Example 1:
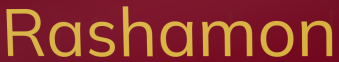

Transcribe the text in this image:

Rashamon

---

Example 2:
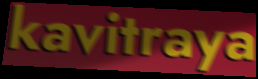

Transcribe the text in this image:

kavitraya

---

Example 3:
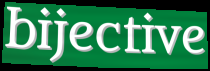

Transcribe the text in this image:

bijective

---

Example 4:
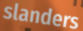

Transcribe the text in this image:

slanders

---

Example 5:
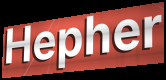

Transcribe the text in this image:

Hepher